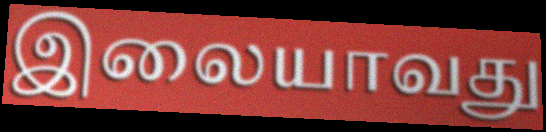
இலையாவது